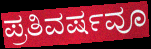
ಪ್ರತಿವರ್ಷವೂ